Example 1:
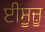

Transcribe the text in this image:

ਈਸੂਜ਼ੂ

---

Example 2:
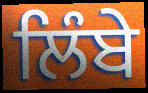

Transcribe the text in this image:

ਲਿੰਬੇ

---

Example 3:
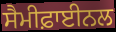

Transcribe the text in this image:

ਸੈਮੀਫ਼ਾਈਨਲ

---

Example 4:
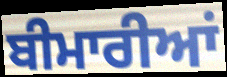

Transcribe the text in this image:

ਬੀਮਾਰੀਆਂ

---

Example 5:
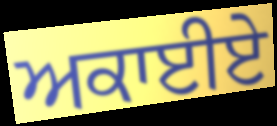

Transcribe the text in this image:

ਅਕਾਈਏ